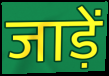
जाड़ें